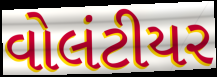
વોલંટીયર